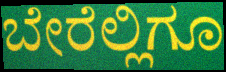
ಬೇರೆಲ್ಲಿಗೂ